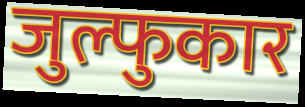
जुल्फुकार